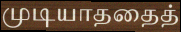
முடியாததைத்